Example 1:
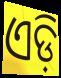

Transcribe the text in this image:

ଏଡ଼ି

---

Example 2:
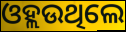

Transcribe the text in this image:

ଓହ୍ଲଉଥିଲେ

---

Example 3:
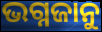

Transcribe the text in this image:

ଭଗ୍ନଜାନୁ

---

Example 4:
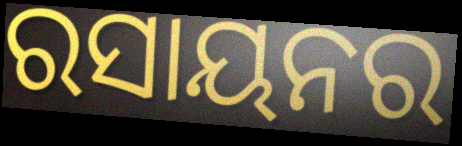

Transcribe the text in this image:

ରସାୟନର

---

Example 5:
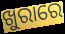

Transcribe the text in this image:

ଖୁରାରେ